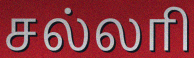
சல்லரி